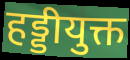
हड्डीयुक्त